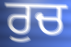
ਰੁਚ